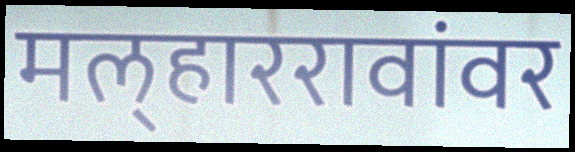
मल्हाररावांवर